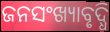
ଜନସଂଖ୍ୟାବୃଦ୍ଧି